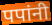
पपांनी